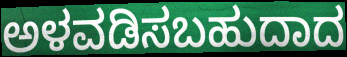
ಅಳವಡಿಸಬಹುದಾದ